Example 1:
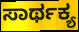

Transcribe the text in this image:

ಸಾರ್ಥಕ್ಯ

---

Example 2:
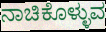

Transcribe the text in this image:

ನಾಚಿಕೊಳ್ಳುವ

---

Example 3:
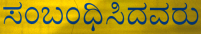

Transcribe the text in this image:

ಸಂಬಂಧಿಸಿದವರು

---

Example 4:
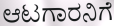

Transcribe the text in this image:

ಆಟಗಾರನಿಗೆ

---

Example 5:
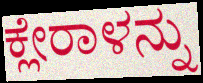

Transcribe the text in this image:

ಕ್ಲೇರಾಳನ್ನು